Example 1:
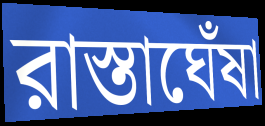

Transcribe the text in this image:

রাস্তাঘেঁষা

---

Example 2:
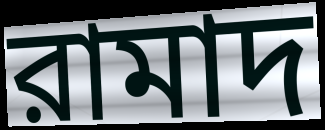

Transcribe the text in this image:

রামাদ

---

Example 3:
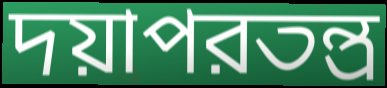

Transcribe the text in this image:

দয়াপরতন্ত্র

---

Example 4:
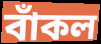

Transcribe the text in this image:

বাঁকল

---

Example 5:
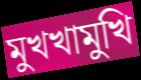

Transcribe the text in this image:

মুখখামুখি